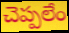
చెప్పలేం